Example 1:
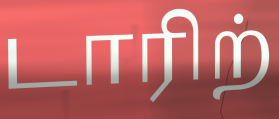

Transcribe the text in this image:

டாரிற்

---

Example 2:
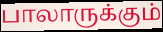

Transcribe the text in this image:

பாலாருக்கும்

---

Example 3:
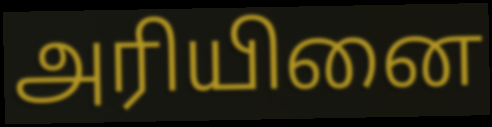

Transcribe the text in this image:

அரியினை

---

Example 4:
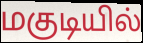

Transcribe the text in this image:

மகுடியில்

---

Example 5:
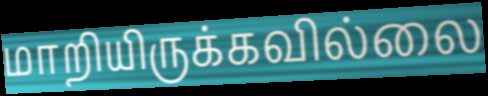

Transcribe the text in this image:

மாறியிருக்கவில்லை